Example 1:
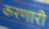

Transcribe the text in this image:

करणारी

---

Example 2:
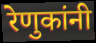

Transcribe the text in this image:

रेणुकांनी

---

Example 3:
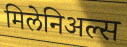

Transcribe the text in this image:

मिलेनिअल्स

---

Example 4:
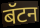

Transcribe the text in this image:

बॅटन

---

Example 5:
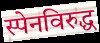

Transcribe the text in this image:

स्पेनविरुद्ध